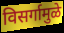
विसर्गामुळे